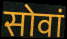
सोवां